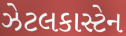
ઝેટલકાસ્ટેન